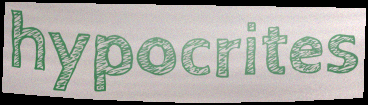
hypocrites